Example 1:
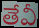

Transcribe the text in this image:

తేవీ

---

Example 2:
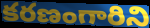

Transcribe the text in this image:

కరణంగారిని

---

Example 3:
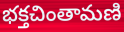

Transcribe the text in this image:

భక్తచింతామణి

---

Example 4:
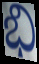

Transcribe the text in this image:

భి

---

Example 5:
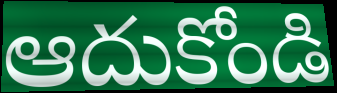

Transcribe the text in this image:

ఆదుకోండి